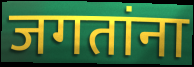
जगतांना